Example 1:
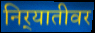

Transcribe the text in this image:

निर्यातीवर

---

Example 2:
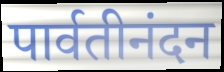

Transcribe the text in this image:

पार्वतीनंदन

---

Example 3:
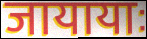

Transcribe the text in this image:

जायायाः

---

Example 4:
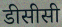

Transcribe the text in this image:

डीसीसी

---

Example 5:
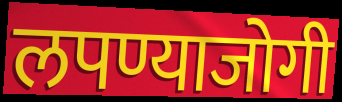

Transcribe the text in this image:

लपण्याजोगी